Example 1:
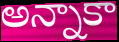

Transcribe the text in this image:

అన్నాకా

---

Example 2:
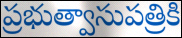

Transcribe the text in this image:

ప్రభుత్వాసుపత్రికి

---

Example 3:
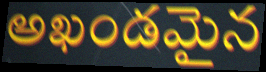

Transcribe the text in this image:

అఖండమైన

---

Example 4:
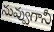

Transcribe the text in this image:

నువ్వుగానీ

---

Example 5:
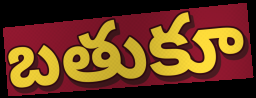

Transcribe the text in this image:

బతుకూ